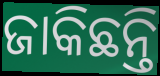
ଜାକିଛନ୍ତି